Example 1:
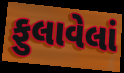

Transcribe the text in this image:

ફુલાવેલાં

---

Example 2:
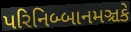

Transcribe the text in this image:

પરિનિબ્બાનમઞ્ચકે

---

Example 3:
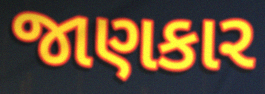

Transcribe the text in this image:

જાણકાર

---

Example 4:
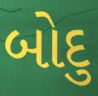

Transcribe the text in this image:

બોદુ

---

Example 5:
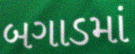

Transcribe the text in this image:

બગાડમાં